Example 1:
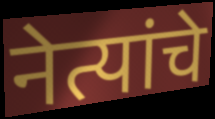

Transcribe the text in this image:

नेत्यांचे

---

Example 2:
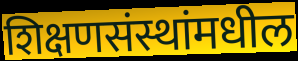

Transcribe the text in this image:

शिक्षणसंस्थांमधील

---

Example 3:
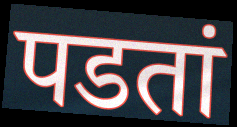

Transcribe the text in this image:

पडतां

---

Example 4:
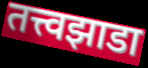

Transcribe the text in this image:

तत्त्वझाडा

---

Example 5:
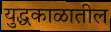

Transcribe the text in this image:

युद्धकाळातील